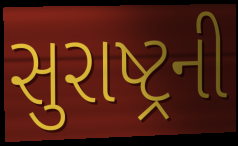
સુરાષ્ટ્રની